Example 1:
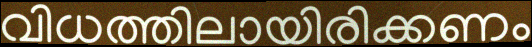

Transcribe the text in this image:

വിധത്തിലായിരിക്കണം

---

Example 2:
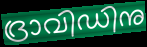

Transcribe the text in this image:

ദ്രാവിഡിനു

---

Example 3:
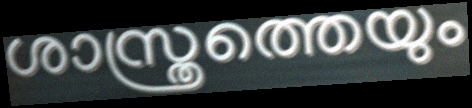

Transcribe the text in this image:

ശാസ്ത്രത്തെയും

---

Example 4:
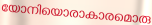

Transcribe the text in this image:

യോനിയൊരാകാരമൊരു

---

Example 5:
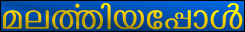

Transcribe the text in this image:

മലൎത്തിയപ്പോൾ